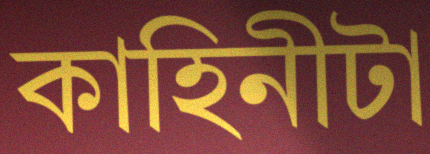
কাহিনীটা